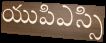
యుపిఎస్సి